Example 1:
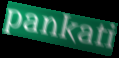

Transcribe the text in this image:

pankati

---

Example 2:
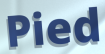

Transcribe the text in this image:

Pied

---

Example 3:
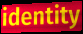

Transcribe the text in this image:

identity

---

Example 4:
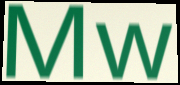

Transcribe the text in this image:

Mw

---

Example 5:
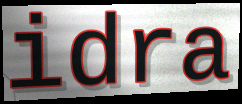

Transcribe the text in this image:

idra